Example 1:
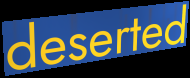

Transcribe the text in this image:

deserted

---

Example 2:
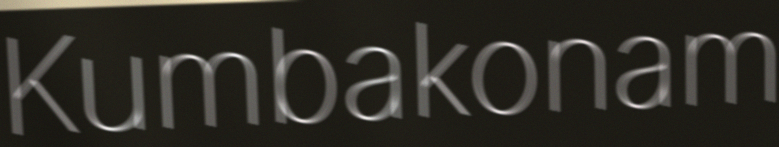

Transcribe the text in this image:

Kumbakonam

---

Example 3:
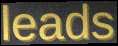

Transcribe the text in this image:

leads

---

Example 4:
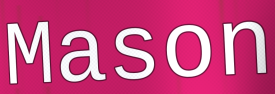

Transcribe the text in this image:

Mason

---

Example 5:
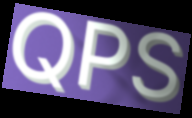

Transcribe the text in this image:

QPS